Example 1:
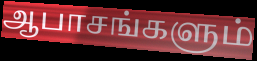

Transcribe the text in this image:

ஆபாசங்களும்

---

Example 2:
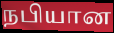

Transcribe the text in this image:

நபியான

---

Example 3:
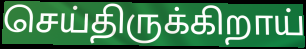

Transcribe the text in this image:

செய்திருக்கிறாய்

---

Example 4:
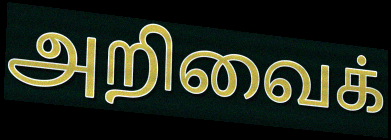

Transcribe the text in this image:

அறிவைக்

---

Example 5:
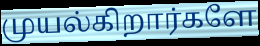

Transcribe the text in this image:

முயல்கிறார்களே